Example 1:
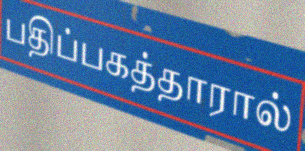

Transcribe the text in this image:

பதிப்பகத்தாரால்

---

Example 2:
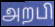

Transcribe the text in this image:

அறபி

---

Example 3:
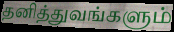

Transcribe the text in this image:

தனித்துவங்களும்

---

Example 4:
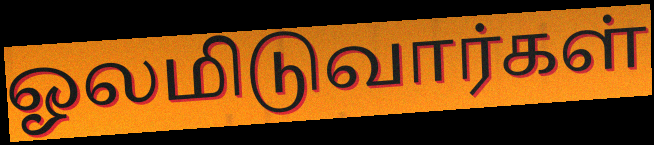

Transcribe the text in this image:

ஓலமிடுவார்கள்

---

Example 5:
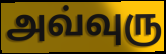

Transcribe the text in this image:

அவ்வுரு